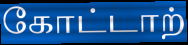
கோட்டாற்